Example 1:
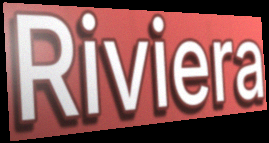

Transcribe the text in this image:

Riviera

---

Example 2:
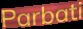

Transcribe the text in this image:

Parbati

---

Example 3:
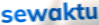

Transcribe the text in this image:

sewaktu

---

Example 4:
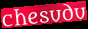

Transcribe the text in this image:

chesudu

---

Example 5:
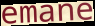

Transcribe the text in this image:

emane